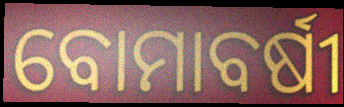
ବୋମାବର୍ଷୀ